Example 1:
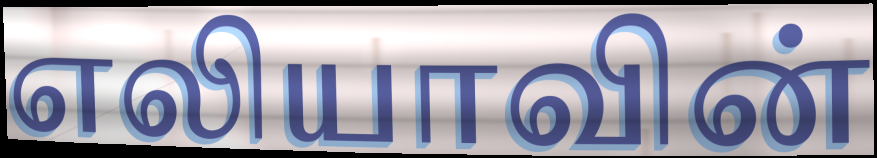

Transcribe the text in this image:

எலியாவின்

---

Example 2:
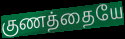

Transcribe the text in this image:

குணத்தையே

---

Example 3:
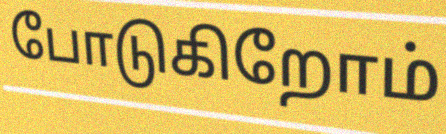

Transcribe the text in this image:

போடுகிறோம்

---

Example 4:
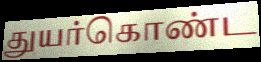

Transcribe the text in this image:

துயர்கொண்ட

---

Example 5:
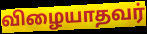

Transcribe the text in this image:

விழையாதவர்